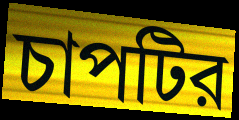
চাপটির